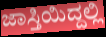
ಜಾಸ್ತಿಯಿದ್ದಲ್ಲಿ